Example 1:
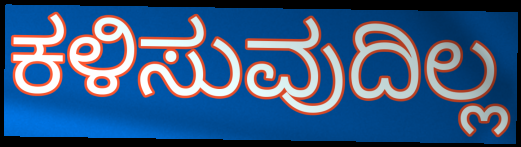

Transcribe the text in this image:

ಕಳಿಸುವುದಿಲ್ಲ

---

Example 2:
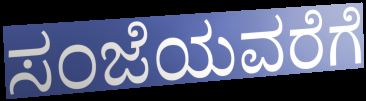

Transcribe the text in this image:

ಸಂಜೆಯವರೆಗೆ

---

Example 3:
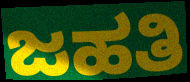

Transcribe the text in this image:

ಜಹತಿ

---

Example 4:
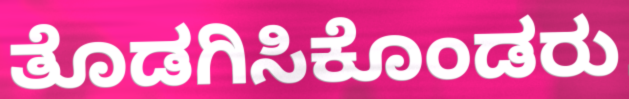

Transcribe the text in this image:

ತೊಡಗಿಸಿಕೊಂಡರು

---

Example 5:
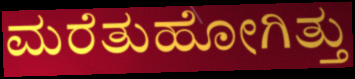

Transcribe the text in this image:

ಮರೆತುಹೋಗಿತ್ತು